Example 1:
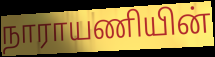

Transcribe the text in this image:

நாராயணியின்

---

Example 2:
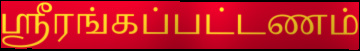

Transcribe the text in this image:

ஸ்ரீரங்கப்பட்டணம்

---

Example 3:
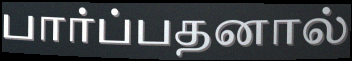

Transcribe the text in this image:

பார்ப்பதனால்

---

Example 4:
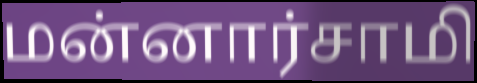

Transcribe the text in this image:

மன்னார்சாமி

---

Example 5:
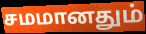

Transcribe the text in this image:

சமமானதும்